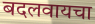
बदलवायचा